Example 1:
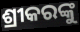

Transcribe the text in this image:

ଶ୍ରୀକରଙ୍କୁ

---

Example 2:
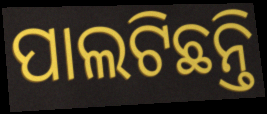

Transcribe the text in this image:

ପାଲଟିଛନ୍ତି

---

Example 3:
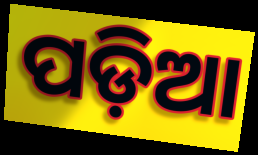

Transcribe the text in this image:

ପଡ଼ିଆ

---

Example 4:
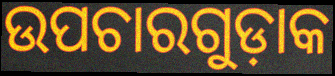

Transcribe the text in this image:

ଉପଚାରଗୁଡ଼ାକ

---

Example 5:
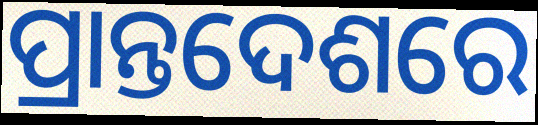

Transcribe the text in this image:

ପ୍ରାନ୍ତଦେଶରେ